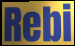
Rebi